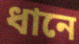
ধানে